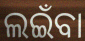
ଲଇଁବା